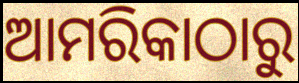
ଆମରିକାଠାରୁ